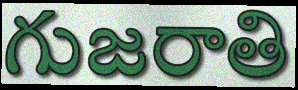
గుజరాతి